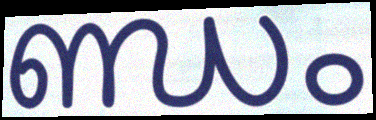
ണ്ഡം